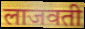
लाजवती